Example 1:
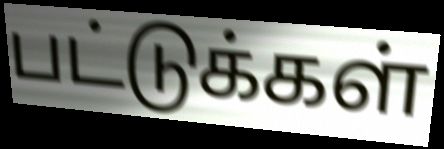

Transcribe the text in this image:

பட்டுக்கள்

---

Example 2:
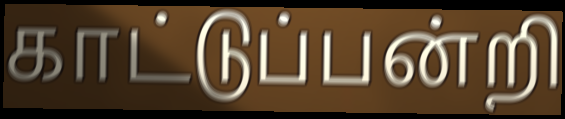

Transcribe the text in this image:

காட்டுப்பன்றி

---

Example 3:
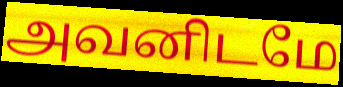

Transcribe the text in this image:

அவனிடமே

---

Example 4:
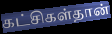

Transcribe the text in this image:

கட்சிகள்தான்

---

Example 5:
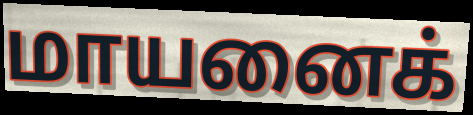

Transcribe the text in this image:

மாயனைக்